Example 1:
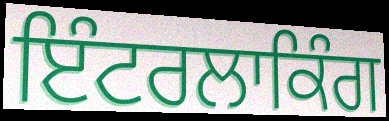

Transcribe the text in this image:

ਇੰਟਰਲਾਕਿੰਗ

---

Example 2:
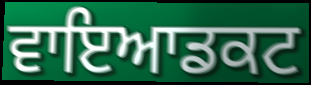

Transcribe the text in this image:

ਵਾਇਆਡਕਟ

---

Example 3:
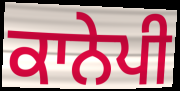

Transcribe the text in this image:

ਕਾਨੇਪੀ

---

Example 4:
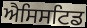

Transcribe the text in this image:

ਐਸਿਸਟਿਡ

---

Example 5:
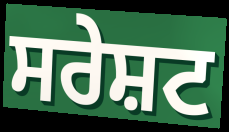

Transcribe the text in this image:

ਸਰੇਸ਼ਟ